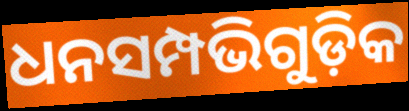
ଧନସମ୍ପଭିଗୁଡ଼ିକ